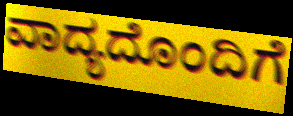
ವಾದ್ಯದೊಂದಿಗೆ